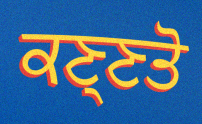
ਕਣ੍ਣਤੋ